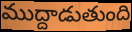
ముద్దాడుతుంది